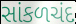
સાંકળચંદ